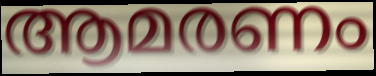
ആമരണം